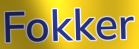
Fokker